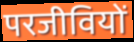
परजीवियों